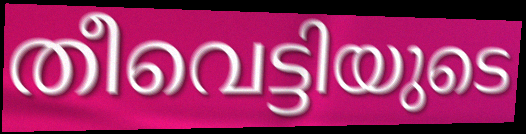
തീവെട്ടിയുടെ